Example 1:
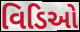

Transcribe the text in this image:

વિડિઓ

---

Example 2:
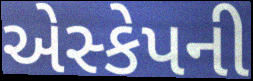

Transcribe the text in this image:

એસ્કેપની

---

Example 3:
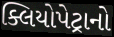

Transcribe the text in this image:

ક્લિયોપેટ્રાનો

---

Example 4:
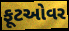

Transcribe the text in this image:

ફૂટઓવર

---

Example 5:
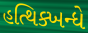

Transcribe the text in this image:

હત્થિક્ખન્ધે